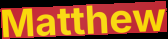
Matthew